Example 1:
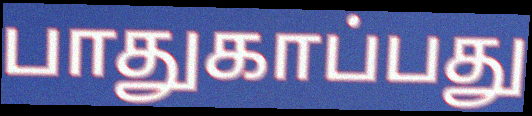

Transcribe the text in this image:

பாதுகாப்பது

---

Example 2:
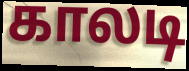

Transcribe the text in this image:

காலடி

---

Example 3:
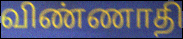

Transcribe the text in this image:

விண்ணாதி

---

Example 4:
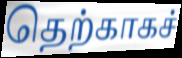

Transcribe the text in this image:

தெற்காகச்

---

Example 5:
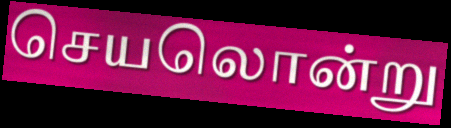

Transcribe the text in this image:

செயலொன்று